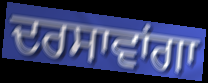
ਦਰਸਾਵਾਂਗਾ